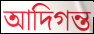
আদিগন্ত